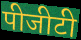
पीजीटी